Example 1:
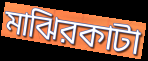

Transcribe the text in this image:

মাঝিরকাটা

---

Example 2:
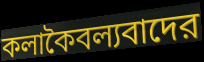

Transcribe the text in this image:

কলাকৈবল্যবাদের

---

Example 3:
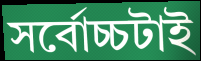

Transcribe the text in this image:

সর্বোচ্চটাই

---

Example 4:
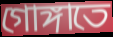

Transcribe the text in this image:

গোঙ্গাতে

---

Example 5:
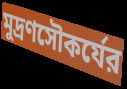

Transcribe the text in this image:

মুদ্রণসৌকর্যের